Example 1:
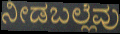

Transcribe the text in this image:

ನೀಡಬಲ್ಲೆವು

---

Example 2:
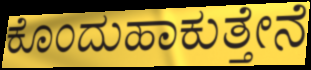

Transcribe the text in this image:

ಕೊಂದುಹಾಕುತ್ತೇನೆ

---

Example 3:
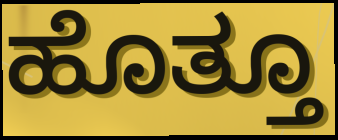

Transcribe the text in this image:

ಹೊತ್ತೂ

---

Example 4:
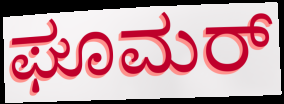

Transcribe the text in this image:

ಘೂಮರ್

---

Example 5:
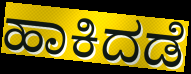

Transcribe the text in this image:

ಹಾಕಿದಡೆ